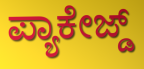
ಪ್ಯಾಕೇಜ್ಡ್